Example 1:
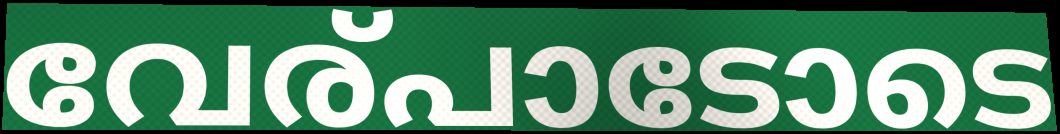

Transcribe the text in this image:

വേര്പാടോടെ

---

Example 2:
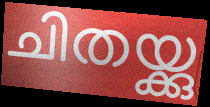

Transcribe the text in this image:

ചിതയ്ക്കു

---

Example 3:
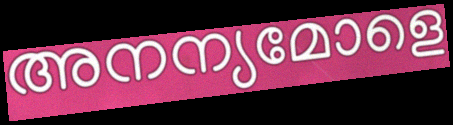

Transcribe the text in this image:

അനന്യമോളെ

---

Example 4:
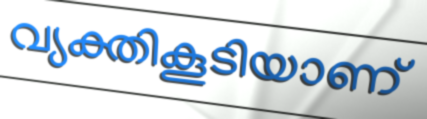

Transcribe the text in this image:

വ്യക്തികൂടിയാണ്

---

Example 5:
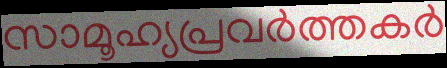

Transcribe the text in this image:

സാമൂഹ്യപ്രവർത്തകർ